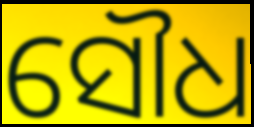
ସୌଧ